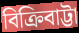
বিক্রিবাট্টা